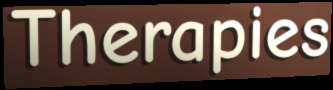
Therapies